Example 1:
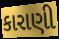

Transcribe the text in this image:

કારાણી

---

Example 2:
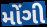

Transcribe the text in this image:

મોંગી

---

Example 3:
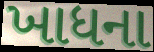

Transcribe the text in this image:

ખાધના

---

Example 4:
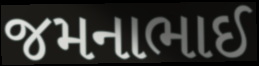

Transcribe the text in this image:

જમનાભાઈ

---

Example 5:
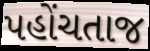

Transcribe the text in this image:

પહોંચતાજ